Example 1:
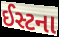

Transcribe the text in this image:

ઈસ્ટના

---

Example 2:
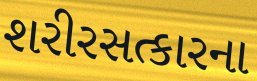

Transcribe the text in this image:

શરીરસત્કારના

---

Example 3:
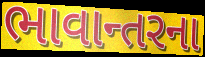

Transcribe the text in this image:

ભાવાન્તરના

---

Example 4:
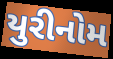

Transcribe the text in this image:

યુરીનોમ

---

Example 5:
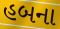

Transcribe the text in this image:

હબના